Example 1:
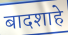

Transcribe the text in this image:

बादशाहे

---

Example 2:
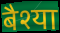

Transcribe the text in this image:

बैश्या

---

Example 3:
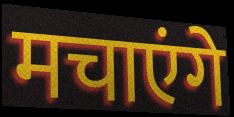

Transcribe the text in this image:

मचाएंगे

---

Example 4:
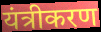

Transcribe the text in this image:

यंत्रीकरण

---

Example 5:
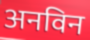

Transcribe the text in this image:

अनविन